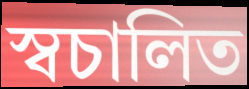
স্বচালিত